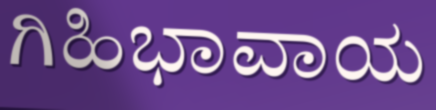
ಗಿಹಿಭಾವಾಯ